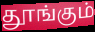
தூங்கும்